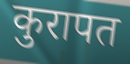
कुरापत